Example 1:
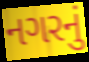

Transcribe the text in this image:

નગરનું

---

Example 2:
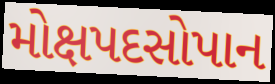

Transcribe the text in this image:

મોક્ષપદસોપાન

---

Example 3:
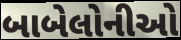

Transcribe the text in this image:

બાબેલોનીઓ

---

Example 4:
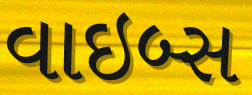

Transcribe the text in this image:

વાઇબ્સ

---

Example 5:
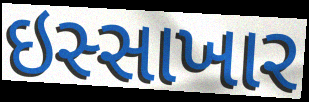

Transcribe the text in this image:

ઇસ્સાખાર